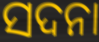
ସଦନା